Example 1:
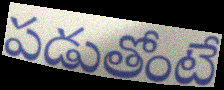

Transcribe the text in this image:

పడుతోంటే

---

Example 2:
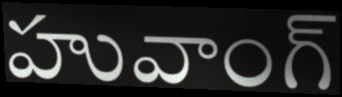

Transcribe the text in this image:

హువాంగ్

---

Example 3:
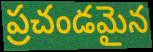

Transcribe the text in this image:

ప్రచండమైన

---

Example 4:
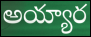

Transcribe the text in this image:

అయ్యార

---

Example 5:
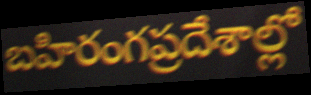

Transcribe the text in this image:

బహిరంగప్రదేశాల్లో